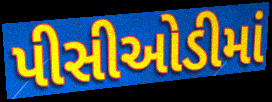
પીસીઓડીમાં